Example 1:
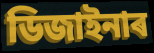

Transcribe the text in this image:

ডিজাইনাৰ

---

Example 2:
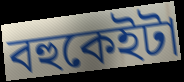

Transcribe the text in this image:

বহুকেইটা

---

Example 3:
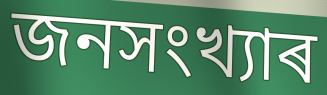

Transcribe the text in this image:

জনসংখ্যাৰ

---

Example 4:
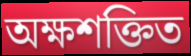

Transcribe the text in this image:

অক্ষশক্তিত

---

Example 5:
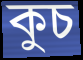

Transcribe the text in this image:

কুচ